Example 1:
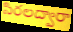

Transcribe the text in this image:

సిరలద్వారా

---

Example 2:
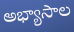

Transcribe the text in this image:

అభ్యాసాల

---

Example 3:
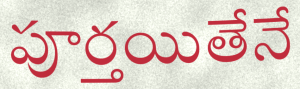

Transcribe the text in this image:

పూర్తయితేనే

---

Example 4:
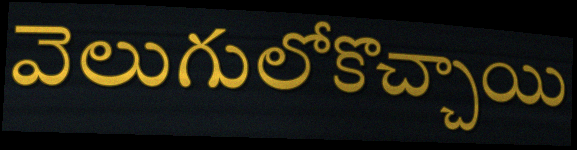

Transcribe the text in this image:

వెలుగులోకొచ్చాయి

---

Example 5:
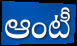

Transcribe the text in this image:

ఆంటీ